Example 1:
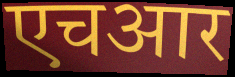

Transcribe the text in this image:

एचआर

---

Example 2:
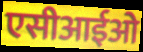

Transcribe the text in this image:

एसीआईओ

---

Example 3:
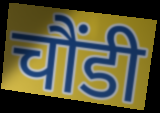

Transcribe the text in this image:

चौंडी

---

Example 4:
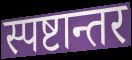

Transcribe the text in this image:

स्पष्टान्तर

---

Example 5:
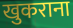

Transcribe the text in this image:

खुकराना